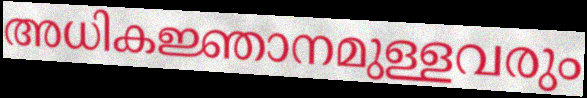
അധികജ്ഞാനമുള്ളവരും